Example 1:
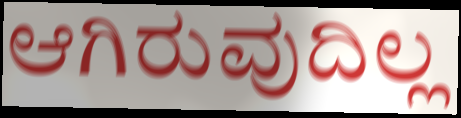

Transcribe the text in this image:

ಆಗಿರುವುದಿಲ್ಲ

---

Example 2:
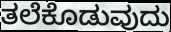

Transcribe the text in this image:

ತಲೆಕೊಡುವುದು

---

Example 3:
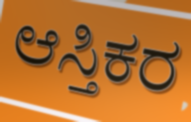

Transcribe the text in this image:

ಆಸ್ತಿಕರ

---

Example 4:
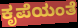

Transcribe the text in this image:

ಕೃಪೆಯಂತೆ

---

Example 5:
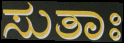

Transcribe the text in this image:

ಸುತಾಃ